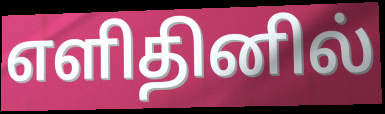
எளிதினில்